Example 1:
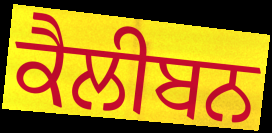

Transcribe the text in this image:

ਕੈਲੀਬਨ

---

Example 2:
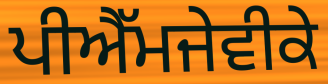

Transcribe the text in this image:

ਪੀਐੱਮਜੇਵੀਕੇ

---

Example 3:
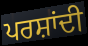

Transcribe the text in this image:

ਪਰਸ਼ਾਂਦੀ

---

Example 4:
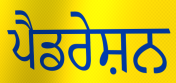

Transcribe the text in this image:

ਪੈਡਰੇਸ਼ਨ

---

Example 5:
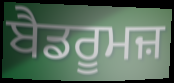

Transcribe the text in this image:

ਬੈਡਰੂਮਜ਼